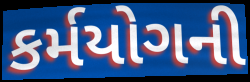
કર્મયોગની